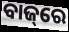
ବାଜ୍‌ରେ